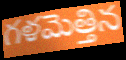
గళమెత్తిన